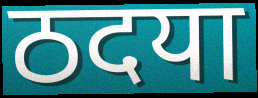
ठदया